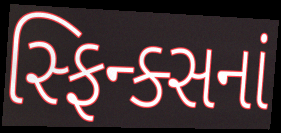
સ્ફિન્ક્સનાં